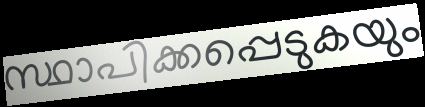
സ്ഥാപിക്കപ്പെടുകയും